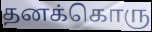
தனக்கொரு